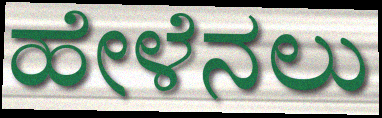
ಹೇಳೆನಲು